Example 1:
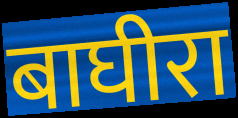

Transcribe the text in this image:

बाघीरा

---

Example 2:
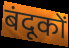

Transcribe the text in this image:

बंदूकों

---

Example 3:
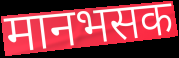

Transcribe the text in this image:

मानभसक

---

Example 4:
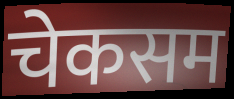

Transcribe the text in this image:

चेकसम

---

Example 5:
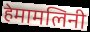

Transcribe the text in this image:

हेमामलिनी